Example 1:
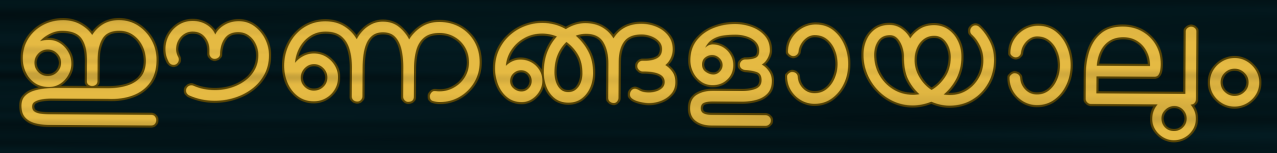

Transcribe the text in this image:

ഈണങ്ങളായാലും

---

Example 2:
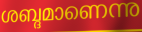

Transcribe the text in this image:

ശബ്ദമാണെന്നു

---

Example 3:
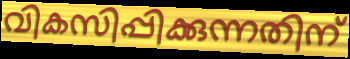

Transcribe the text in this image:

വികസിപ്പിക്കുന്നതിന്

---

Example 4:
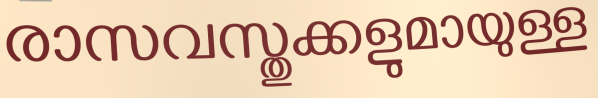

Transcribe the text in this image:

രാസവസ്തുക്കളുമായുള്ള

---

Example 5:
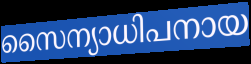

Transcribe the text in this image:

സൈന്യാധിപനായ